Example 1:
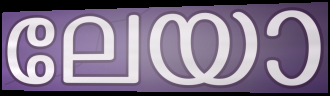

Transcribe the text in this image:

ലേയാ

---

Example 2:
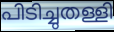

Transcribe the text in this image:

പിടിച്ചുതള്ളി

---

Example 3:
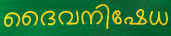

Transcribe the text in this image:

ദൈവനിഷേധ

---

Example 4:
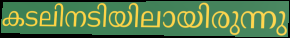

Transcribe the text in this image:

കടലിനടിയിലായിരുന്നു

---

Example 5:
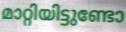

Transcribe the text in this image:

മാറ്റിയിട്ടുണ്ടോ